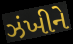
ઝંખીને